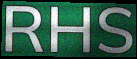
RHS